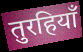
तुरहियाँ